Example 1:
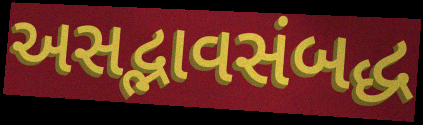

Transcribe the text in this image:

અસદ્ભાવસંબદ્ધ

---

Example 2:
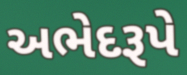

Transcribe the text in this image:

અભેદરૂપે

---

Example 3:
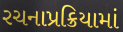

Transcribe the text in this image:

રચનાપ્રક્રિયામાં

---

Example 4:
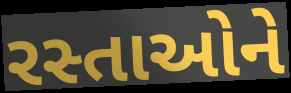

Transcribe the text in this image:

રસ્તાઓને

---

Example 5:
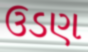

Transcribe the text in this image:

ઉડણ